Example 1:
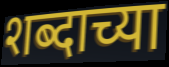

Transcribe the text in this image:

शब्दाच्या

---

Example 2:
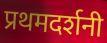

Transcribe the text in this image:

प्रथमदर्शनी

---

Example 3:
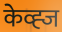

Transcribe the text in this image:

केव्ह्ज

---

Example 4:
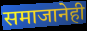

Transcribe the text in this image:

समाजानेही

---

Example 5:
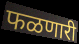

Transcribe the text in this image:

फळणारी